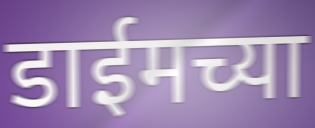
डाईमच्या